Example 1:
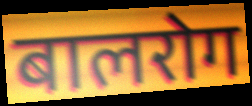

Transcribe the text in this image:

बालरोग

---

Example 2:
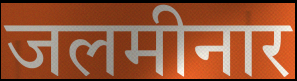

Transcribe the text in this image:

जलमीनार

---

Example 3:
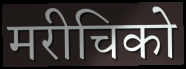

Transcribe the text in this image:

मरीचिको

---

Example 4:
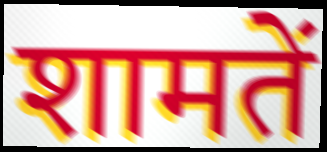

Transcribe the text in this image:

शामतें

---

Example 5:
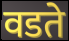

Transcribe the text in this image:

वडते